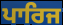
ਪਾਰਿਜ